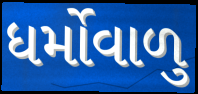
ધર્મોવાળુ